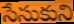
సేసుకుని